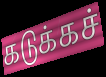
கடுக்கச்